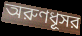
অরুণধূসর